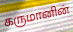
கருமானின்